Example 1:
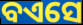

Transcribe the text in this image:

ବଏସେ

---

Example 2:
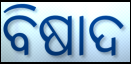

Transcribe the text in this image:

ବିଷାଦ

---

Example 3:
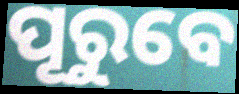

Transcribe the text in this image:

ପୂରୁବେ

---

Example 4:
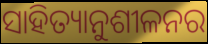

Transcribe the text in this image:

ସାହିତ୍ୟାନୁଶୀଳନର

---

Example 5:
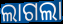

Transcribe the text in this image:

ଲାଗଲା